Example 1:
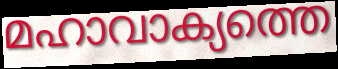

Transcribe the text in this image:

മഹാവാക്യത്തെ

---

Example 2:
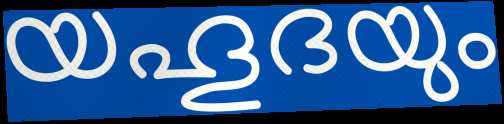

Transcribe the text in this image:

യഹൂദയും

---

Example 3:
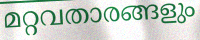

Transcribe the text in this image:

മറ്റവതാരങ്ങളും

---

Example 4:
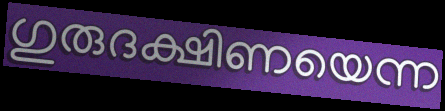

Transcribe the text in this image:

ഗുരുദക്ഷിണയെന്ന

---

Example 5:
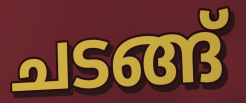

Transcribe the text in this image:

ചടങ്ങ്